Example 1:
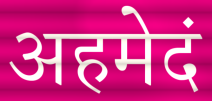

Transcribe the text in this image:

अहमेदं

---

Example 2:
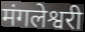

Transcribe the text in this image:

मंगलेश्वरी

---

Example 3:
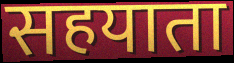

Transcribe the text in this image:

सहयाता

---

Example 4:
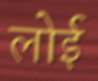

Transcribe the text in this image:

लोई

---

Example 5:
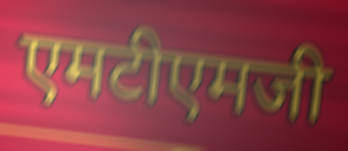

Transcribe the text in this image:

एमटीएमजी